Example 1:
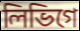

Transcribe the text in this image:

লিভিগে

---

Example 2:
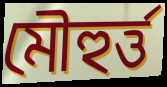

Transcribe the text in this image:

মৌহুৰ্ত্ত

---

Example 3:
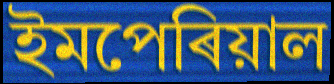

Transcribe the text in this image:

ইমপেৰিয়াল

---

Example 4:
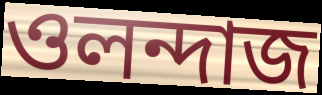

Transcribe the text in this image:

ওলন্দাজ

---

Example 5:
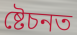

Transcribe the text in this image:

ষ্টেচনত